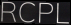
RCPL